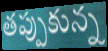
తప్పుకున్న